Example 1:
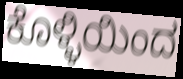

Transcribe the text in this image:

ಕೊಳ್ಳಿಯಿಂದ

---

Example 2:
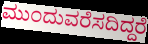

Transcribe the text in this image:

ಮುಂದುವರೆಸದಿದ್ದರೆ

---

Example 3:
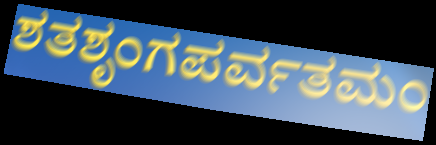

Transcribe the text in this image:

ಶತಶೃಂಗಪರ್ವತಮಂ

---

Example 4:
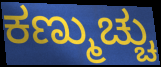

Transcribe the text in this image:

ಕಣ್ಮುಚ್ಚು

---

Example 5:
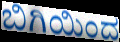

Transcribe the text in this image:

ಬಿಗಿಯಿಂದ